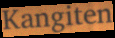
Kangiten